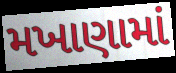
મખાણામાં